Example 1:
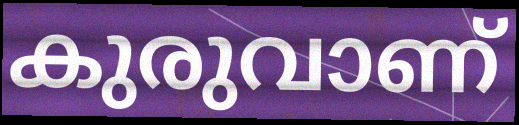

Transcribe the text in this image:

കുരുവാണ്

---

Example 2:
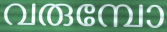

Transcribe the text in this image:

വരുമ്പോ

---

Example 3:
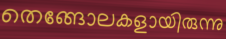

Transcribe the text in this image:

തെങ്ങോലകളായിരുന്നു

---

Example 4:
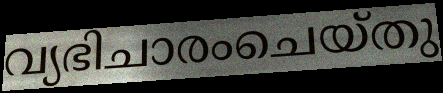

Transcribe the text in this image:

വ്യഭിചാരംചെയ്തു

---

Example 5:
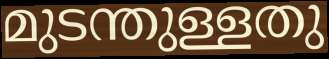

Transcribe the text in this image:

മുടന്തുള്ളതു